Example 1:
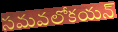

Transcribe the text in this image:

సమవలోకయన్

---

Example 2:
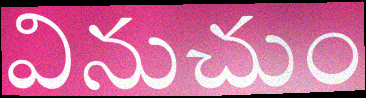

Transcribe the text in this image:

వినుచుం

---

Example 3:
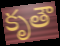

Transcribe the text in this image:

కృతౌ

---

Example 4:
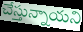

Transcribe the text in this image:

చేస్తున్నాయని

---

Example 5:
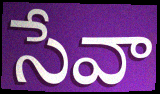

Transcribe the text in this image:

సేవా